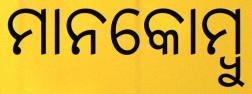
ମାନକୋମ୍ବୁ